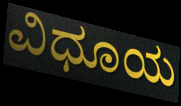
ವಿಧೂಯ